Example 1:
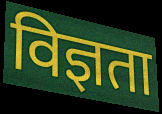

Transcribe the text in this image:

विज्ञता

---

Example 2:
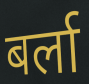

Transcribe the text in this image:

बर्ला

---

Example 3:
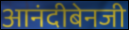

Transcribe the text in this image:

आनंदीबेनजी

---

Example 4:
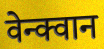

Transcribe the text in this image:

वेन्क्वान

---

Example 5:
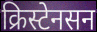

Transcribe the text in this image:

क्रिस्टेनसन